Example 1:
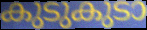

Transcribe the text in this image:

കുടുകുടാ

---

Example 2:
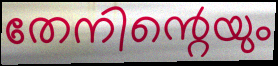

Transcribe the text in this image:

തേനിന്റെയും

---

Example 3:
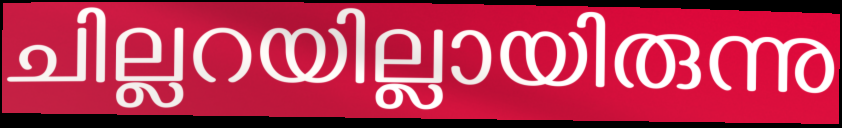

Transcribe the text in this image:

ചില്ലറയില്ലായിരുന്നു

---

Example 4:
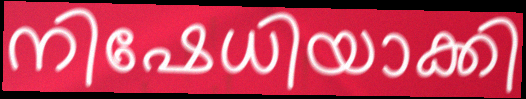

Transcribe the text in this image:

നിഷേധിയാക്കി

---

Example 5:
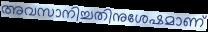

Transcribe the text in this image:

അവസാനിച്ചതിനുശേഷമാണ്